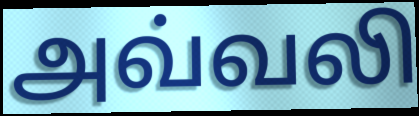
அவ்வலி